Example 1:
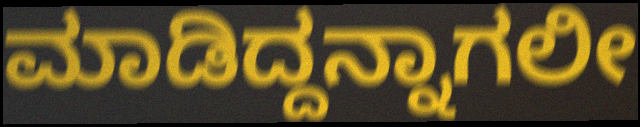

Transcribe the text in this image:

ಮಾಡಿದ್ದನ್ನಾಗಲೀ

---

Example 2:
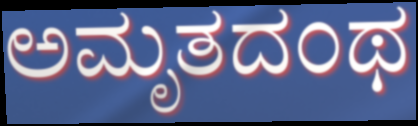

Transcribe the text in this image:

ಅಮೃತದಂಥ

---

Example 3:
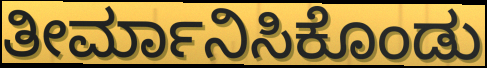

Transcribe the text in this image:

ತೀರ್ಮಾನಿಸಿಕೊಂಡು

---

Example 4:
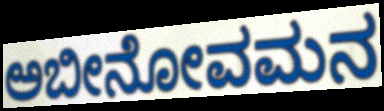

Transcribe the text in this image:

ಅಬೀನೋವಮನ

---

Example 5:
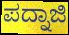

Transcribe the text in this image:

ಪದ್ನಾಜಿ